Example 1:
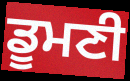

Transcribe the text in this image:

ਡੂਮਣੀ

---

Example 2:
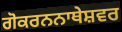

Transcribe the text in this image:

ਗੋਕਰਨਨਾਥੇਸ਼ਵਰ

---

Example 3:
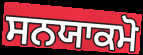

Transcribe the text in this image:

ਸਨਯਾਕਮੋ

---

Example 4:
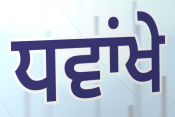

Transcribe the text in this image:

ਧਵਾਂਖੇ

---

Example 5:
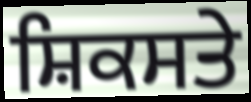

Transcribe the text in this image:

ਸ਼ਿਕਸਤੇ